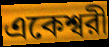
একেশ্বরী